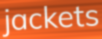
jackets